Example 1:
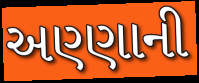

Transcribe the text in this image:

અણ્ણાની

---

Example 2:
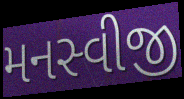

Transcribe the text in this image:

મનસ્વીજી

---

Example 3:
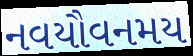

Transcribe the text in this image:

નવયૌવનમય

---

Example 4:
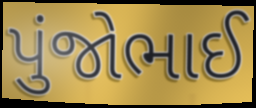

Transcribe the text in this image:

પુંજોભાઈ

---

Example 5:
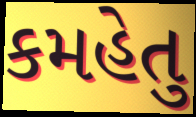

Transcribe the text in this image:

કમહેતુ